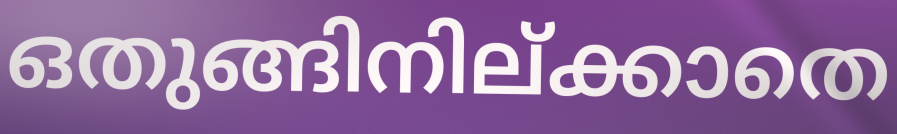
ഒതുങ്ങിനില്ക്കാതെ